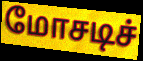
மோசடிச்